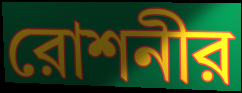
রোশনীর